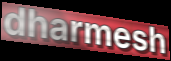
dharmesh